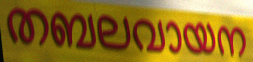
തബലവായന